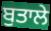
ਬੁਤਾਲੇ